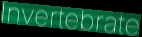
Invertebrate